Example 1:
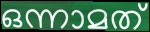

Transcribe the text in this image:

ഒന്നാമത്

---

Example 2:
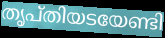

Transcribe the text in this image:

തൃപ്തിയടയേണ്ടി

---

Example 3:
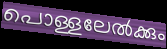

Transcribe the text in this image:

പൊള്ളലേൽക്കും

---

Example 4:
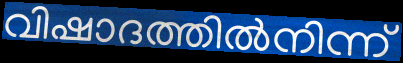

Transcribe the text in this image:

വിഷാദത്തിൽനിന്ന്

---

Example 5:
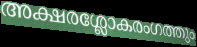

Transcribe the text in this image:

അക്ഷരശ്ലോകരംഗത്തും